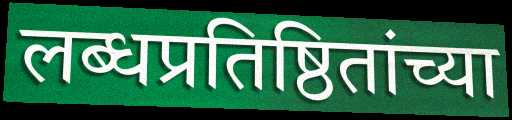
लब्धप्रतिष्ठितांच्या